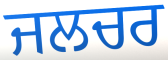
ਜਲਚਰ